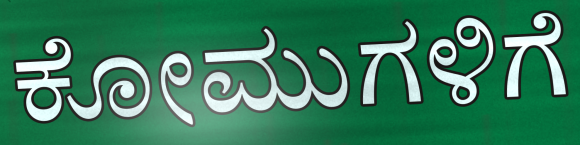
ಕೋಮುಗಳಿಗೆ